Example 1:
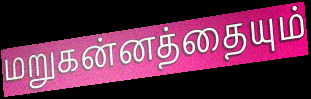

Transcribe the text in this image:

மறுகன்னத்தையும்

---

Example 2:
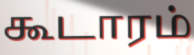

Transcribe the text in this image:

கூடாரம்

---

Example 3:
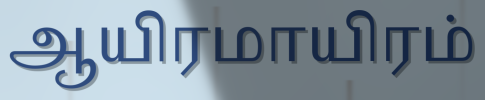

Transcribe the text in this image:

ஆயிரமாயிரம்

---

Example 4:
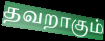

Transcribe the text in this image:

தவறாகும்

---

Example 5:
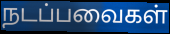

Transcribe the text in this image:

நடப்பவைகள்